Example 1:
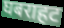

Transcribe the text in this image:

घबराहट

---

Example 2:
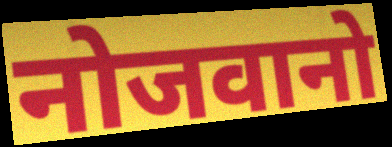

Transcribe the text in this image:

नोजवानो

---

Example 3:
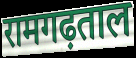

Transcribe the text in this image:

रामगढ़ताल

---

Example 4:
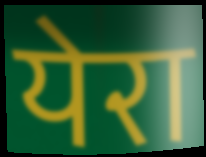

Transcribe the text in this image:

येरा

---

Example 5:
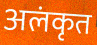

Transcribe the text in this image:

अलंकृत